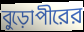
বুড়োপীরের